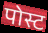
पोस्ट